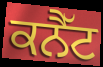
ਕਨੈੱਟ